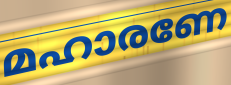
മഹാരണേ